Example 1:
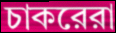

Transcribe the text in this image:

চাকরেরা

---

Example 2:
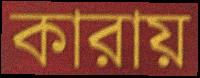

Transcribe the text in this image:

কারায়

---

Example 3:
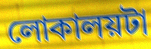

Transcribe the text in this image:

লোকালয়টা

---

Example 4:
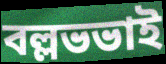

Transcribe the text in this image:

বল্লভভাই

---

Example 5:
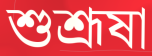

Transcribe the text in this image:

শুশ্রূষা